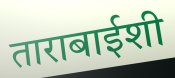
ताराबाईशी